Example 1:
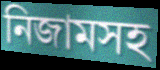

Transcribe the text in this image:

নিজামসহ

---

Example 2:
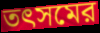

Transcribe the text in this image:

তৎসমের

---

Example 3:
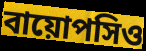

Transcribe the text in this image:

বায়োপসিও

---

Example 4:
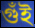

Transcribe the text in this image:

গুঁই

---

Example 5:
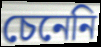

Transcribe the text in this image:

চেনেনি